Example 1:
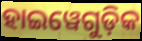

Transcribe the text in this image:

ହାଇୱେଗୁଡ଼ିକ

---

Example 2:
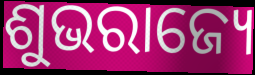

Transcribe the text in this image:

ଶୁଭରାଜ୍ୟେ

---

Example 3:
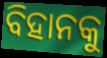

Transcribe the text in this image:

ବିହାନକୁ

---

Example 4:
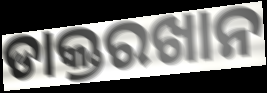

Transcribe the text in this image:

ଡାକ୍ତରଖାନ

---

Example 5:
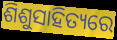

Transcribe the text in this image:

ଶିଶୁସାହିତ୍ୟରେ